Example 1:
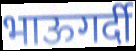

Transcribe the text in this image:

भाऊगर्दी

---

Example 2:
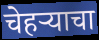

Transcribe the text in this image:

चेहर्‍याचा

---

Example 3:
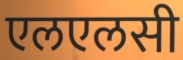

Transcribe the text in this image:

एलएलसी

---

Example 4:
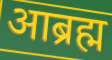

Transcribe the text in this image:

आब्रह्म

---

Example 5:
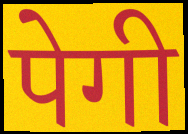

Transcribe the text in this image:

पेगी